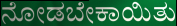
ನೋಡಬೇಕಾಯಿತು